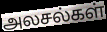
அலசல்கள்